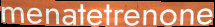
menatetrenone